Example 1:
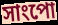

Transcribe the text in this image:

সাংপো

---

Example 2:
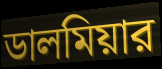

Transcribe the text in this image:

ডালমিয়ার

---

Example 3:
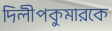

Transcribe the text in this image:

দিলীপকুমারকে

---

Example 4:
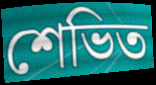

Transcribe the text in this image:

শেভিত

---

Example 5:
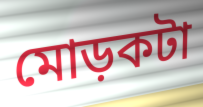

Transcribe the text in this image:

মোড়কটা